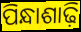
ପିନ୍ଧାଶାଢ଼ି